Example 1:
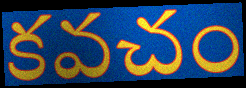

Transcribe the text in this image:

కవచం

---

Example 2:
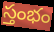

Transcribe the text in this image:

స్తంభం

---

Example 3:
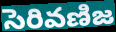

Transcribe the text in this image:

సెరివణిజ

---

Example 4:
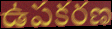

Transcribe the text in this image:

ఉపకరణ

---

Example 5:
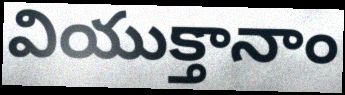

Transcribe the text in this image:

వియుక్తానాం